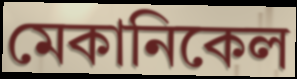
মেকানিকেল